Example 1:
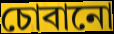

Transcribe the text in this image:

চোবানো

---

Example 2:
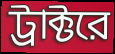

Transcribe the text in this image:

ট্রাক্টরে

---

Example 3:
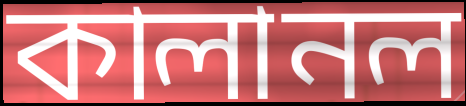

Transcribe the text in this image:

কালানল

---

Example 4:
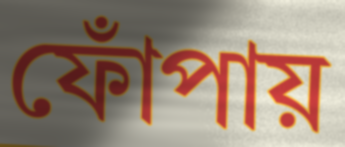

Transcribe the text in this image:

ফোঁপায়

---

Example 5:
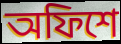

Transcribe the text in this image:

অফিশে